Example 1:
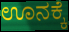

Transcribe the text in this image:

ಊನಕ್ಕೆ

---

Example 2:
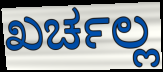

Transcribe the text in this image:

ಖರ್ಚಲ್ಲ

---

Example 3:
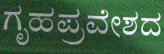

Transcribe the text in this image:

ಗೃಹಪ್ರವೇಶದ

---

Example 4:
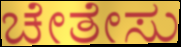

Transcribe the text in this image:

ಚೇತೇಸು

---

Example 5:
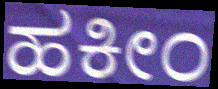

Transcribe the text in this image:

ಹಕೀಂ